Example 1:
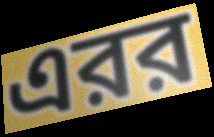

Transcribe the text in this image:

এরর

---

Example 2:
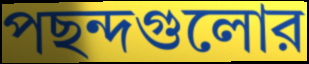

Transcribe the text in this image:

পছন্দগুলোর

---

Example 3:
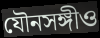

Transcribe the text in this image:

যৌনসঙ্গীও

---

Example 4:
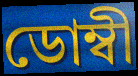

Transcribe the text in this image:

ডোম্বী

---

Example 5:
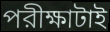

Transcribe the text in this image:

পরীক্ষাটাই